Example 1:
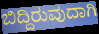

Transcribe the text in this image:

ಬಿದ್ದಿರುವುದಾಗಿ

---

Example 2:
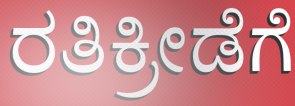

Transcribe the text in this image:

ರತಿಕ್ರೀಡೆಗೆ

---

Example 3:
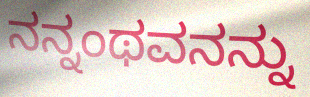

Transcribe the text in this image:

ನನ್ನಂಥವನನ್ನು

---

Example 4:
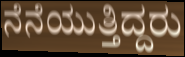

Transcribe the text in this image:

ನೆನೆಯುತ್ತಿದ್ದರು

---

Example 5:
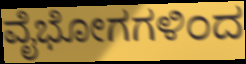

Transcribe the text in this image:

ವೈಭೋಗಗಳಿಂದ